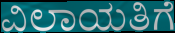
ವಿಲಾಯತಿಗೆ